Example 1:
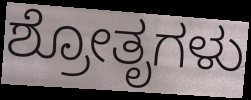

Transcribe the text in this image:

ಶ್ರೋತೃಗಳು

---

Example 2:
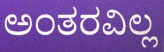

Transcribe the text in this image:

ಅಂತರವಿಲ್ಲ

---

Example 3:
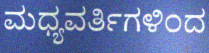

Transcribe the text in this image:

ಮಧ್ಯವರ್ತಿಗಳಿಂದ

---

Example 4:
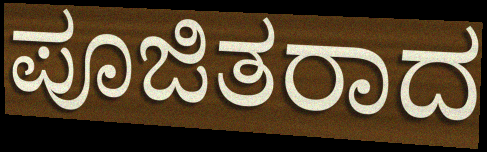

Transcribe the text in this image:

ಪೂಜಿತರಾದ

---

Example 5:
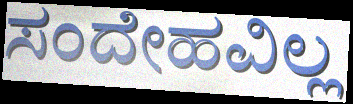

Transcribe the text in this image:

ಸಂದೇಹವಿಲ್ಲ